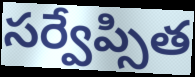
సర్వేప్సిత